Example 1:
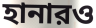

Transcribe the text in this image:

হানারও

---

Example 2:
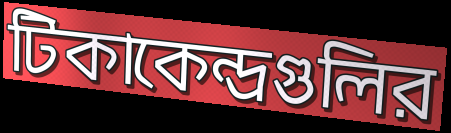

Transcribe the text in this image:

টিকাকেন্দ্রগুলির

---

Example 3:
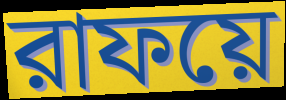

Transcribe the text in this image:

রাফয়ে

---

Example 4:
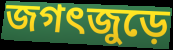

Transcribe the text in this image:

জগৎজুড়ে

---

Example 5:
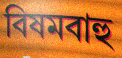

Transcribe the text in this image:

বিষমবাহু